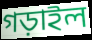
গড়াইল